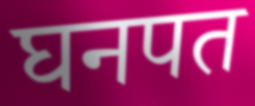
घनपत